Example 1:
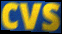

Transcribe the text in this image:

cvs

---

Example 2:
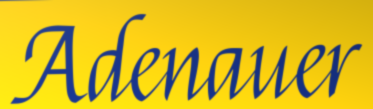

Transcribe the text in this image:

Adenauer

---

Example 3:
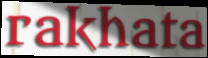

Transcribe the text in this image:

rakhata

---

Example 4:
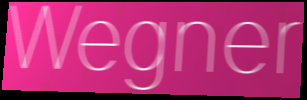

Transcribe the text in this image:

Wegner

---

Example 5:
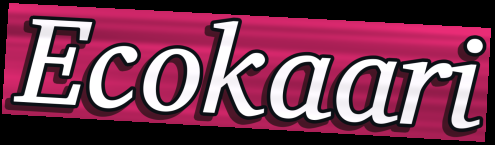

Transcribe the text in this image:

Ecokaari